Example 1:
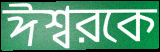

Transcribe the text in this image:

ঈশ্বরকে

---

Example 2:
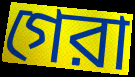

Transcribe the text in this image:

গেরা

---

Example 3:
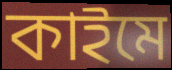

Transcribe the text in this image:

কাইমে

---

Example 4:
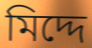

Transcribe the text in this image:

মিদ্দে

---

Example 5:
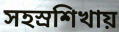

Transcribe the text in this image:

সহস্রশিখায়